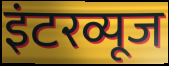
इंटरव्यूज